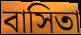
বাসিতা